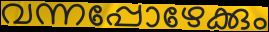
വന്നപ്പോഴേക്കും